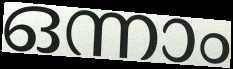
ഒന്നാം